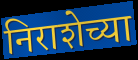
निराशेच्या